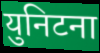
युनिटना